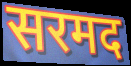
सरमद